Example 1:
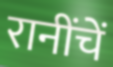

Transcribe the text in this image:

रानींचें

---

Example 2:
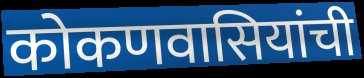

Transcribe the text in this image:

कोकणवासियांची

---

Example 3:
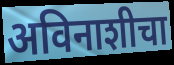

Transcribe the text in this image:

अविनाशीचा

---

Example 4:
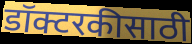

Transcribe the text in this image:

डॉक्टरकीसाठी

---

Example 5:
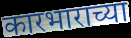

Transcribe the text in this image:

कारभाराच्या